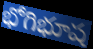
భోగిభూష